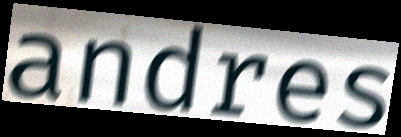
andres